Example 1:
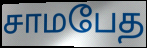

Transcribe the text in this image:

சாமபேத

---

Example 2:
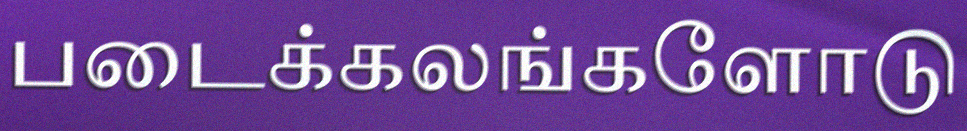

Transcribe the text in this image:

படைக்கலங்களோடு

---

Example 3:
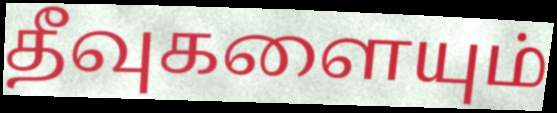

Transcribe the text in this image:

தீவுகளையும்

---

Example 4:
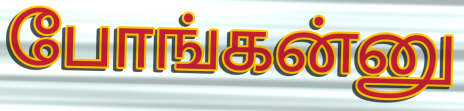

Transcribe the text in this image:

போங்கன்னு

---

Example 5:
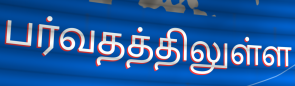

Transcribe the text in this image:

பர்வதத்திலுள்ள